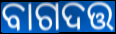
ବାଗଦତ୍ତ